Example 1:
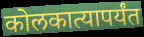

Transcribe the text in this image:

कोलकात्यापर्यंत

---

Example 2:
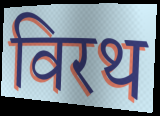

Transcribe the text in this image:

विरथ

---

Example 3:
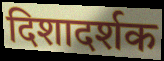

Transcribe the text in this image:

दिशादर्शक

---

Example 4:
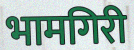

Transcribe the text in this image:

भामगिरी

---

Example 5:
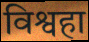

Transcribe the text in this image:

विश्वहा